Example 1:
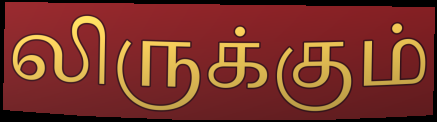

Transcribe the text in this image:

லிருக்கும்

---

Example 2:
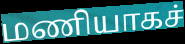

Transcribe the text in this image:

மணியாகச்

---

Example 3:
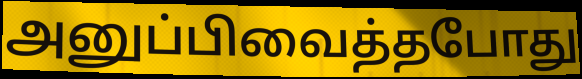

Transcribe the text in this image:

அனுப்பிவைத்தபோது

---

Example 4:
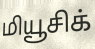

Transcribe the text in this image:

மியூசிக்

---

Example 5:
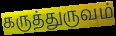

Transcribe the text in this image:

கருத்துருவம்